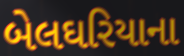
બેલઘરિયાના